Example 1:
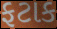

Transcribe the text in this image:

ફટાક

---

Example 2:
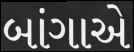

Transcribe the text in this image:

બાંગાએ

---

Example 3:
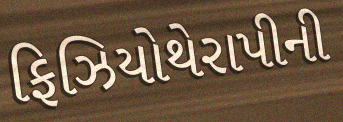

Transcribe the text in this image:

ફિઝિયોથેરાપીની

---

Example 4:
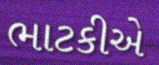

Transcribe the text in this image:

ભાટકીએ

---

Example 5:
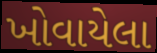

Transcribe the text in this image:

ખોવાયેલા